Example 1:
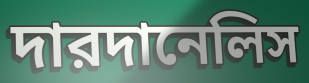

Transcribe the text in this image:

দারদানেলিস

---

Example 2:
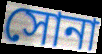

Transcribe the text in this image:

সোনা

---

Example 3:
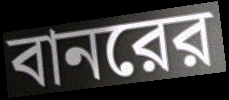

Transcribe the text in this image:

বানরের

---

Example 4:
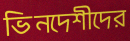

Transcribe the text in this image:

ভিনদেশীদের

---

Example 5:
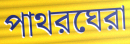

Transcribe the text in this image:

পাথরঘেরা